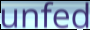
unfed